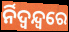
ର୍ନିଦ୍ୱନ୍ଦ୍ୱରେ